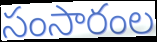
సంసారంల